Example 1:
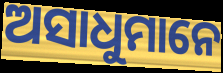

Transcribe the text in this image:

ଅସାଧୁମାନେ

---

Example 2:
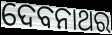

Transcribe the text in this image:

ଦେବନାଥର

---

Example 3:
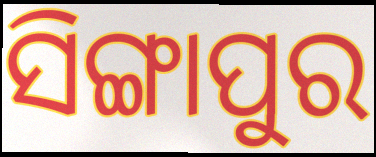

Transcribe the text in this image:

ସିଙ୍ଗାପୁର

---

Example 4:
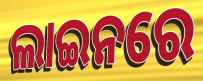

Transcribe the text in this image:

ଲାଇନରେ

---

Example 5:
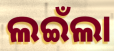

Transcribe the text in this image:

ଲଇଁଲା